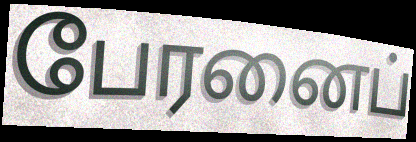
பேரனைப்